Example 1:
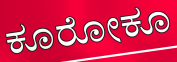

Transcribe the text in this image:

ಕೂರೋಕೂ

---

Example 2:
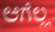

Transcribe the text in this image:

ಆಗೆಲ್ಲ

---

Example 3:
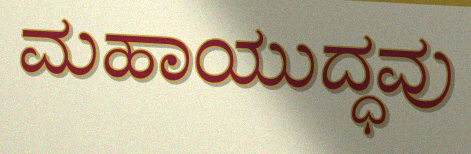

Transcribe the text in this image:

ಮಹಾಯುದ್ಧವು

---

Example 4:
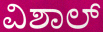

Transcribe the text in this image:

ವಿಶಾಲ್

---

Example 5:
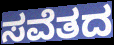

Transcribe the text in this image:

ಸವೆತದ